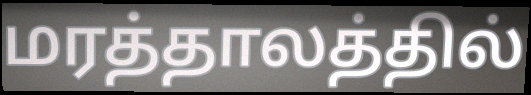
மரத்தாலத்தில்